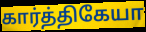
கார்த்திகேயா